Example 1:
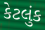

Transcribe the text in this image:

કેટલુંક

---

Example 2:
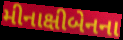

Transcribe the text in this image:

મીનાક્ષીબેનના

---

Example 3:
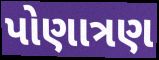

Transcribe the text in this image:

પોણાત્રણ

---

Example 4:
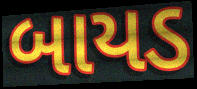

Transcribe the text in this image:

બાયડ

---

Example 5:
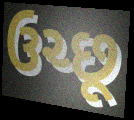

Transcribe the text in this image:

ઉચ્છૂ